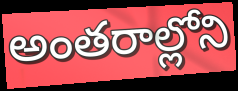
అంతరాల్లోని